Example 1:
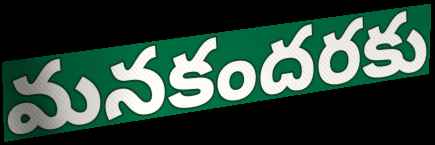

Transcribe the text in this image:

మనకందరకు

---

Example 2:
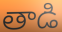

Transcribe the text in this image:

తాడి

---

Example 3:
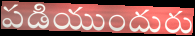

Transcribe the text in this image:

పడియుందురు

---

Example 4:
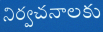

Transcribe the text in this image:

నిర్వచనాలకు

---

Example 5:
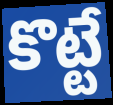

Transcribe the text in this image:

కొట్టే